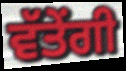
ਵੱਤੇਂਗੀ